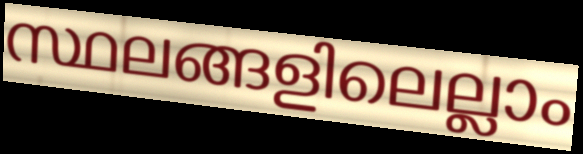
സ്ഥലങ്ങളിലെല്ലാം